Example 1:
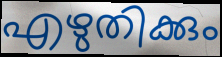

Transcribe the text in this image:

എഴുതിക്കും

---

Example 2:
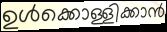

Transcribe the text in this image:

ഉൾക്കൊള്ളിക്കാൻ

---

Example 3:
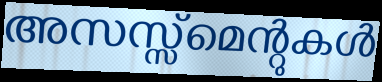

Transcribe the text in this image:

അസസ്സ്മെന്റുകൾ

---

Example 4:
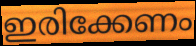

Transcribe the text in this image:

ഇരിക്കേണം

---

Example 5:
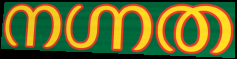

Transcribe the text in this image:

നഗ്നത